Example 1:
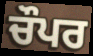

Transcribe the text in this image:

ਚੌਪਰ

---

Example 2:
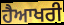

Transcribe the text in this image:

ਹੈਆਖਰੀ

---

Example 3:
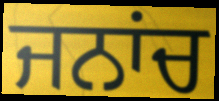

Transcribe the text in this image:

ਜਨਾਂਚ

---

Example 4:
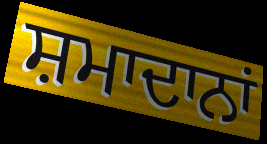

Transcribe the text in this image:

ਸ਼ਮਾਦਾਨਾਂ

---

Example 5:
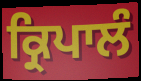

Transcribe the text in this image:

ਕ੍ਰਿਪਾਲੰ